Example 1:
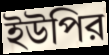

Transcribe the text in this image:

ইউপির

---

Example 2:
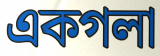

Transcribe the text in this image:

একগলা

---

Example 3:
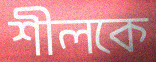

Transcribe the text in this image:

শীলকে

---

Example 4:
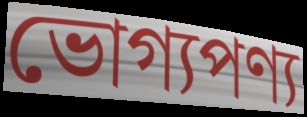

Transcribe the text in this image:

ভোগ্যপণ্য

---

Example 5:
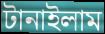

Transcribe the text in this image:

টানাইলাম